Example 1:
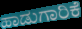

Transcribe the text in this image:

ಹಾಡುಗಾರಿಕೆ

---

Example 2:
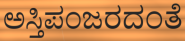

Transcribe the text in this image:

ಅಸ್ತಿಪಂಜರದಂತೆ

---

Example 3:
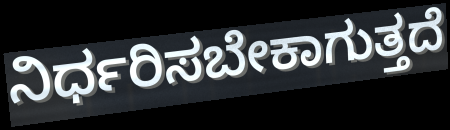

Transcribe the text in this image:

ನಿರ್ಧರಿಸಬೇಕಾಗುತ್ತದೆ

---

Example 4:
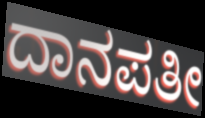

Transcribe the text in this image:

ದಾನಪತೀ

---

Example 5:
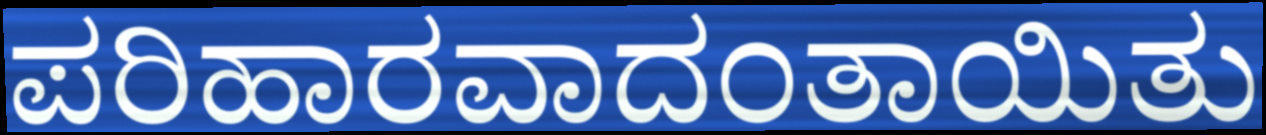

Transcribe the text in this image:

ಪರಿಹಾರವಾದಂತಾಯಿತು